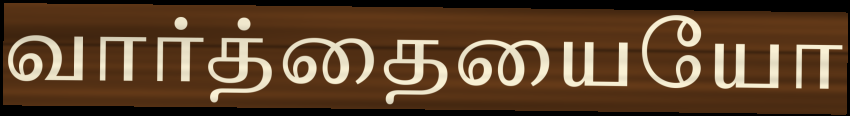
வார்த்தையையோ